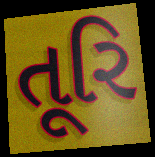
તૂરિ